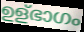
ഉള്ഭാഗം